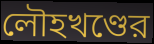
লৌহখণ্ডের